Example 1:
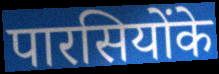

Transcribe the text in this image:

पारसियोंके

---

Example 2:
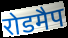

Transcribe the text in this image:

रोडमैप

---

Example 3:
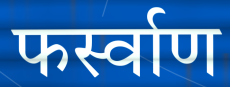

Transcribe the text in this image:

फर्स्वाण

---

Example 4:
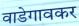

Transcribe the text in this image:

वाडेगावकर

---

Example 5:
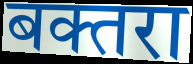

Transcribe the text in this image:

बक्तरा